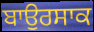
ਬਾਉਰਸਾਕ